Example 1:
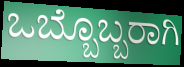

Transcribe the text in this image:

ಒಬ್ಬೊಬ್ಬರಾಗಿ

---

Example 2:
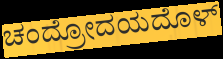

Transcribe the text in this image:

ಚಂದ್ರೋದಯದೊಳ್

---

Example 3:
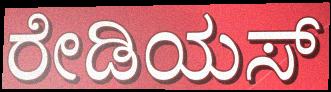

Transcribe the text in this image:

ರೇಡಿಯಸ್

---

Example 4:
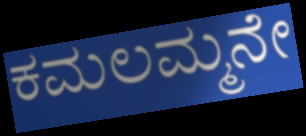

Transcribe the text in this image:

ಕಮಲಮ್ಮನೇ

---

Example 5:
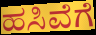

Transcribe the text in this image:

ಹಸಿವೆಗೆ